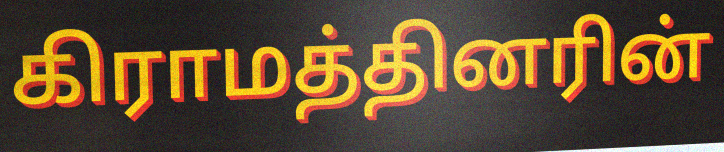
கிராமத்தினரின்